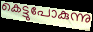
കെട്ടുപോകുന്നു